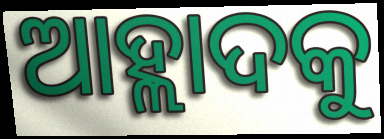
ଆହ୍ଲାଦକୁ